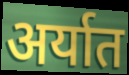
अर्यात